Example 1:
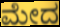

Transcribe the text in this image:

ಮೇದ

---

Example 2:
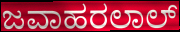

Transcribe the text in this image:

ಜವಾಹರಲಾಲ್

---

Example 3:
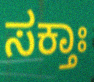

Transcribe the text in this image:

ಸಕ್ತಾಃ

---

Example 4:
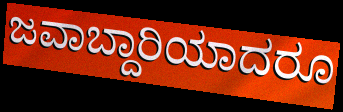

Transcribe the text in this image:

ಜವಾಬ್ದಾರಿಯಾದರೂ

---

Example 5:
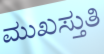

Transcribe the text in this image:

ಮುಖಸ್ತುತಿ